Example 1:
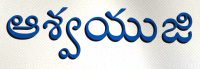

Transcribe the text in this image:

ఆశ్వయుజి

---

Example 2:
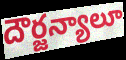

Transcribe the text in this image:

దౌర్జన్యాలూ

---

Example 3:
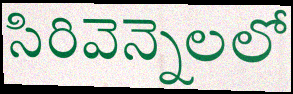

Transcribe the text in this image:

సిరివెన్నెలలో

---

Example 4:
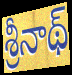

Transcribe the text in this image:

శ్రీనాథ్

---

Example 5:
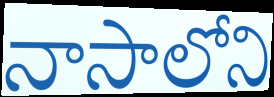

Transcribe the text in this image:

నాసాలోని